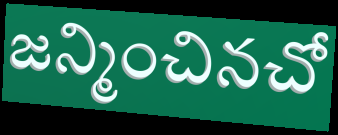
జన్మించినచో